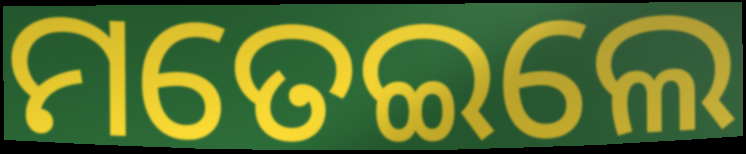
ମତେଇଲେ